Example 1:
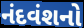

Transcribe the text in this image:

નંદવંશનો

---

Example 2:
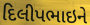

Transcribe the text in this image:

દિલીપભાઇને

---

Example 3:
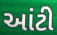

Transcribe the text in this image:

આંટી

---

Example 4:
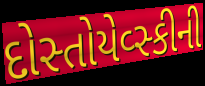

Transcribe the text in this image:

દોસ્તોયેવ્સ્કીની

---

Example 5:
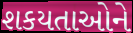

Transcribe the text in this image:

શકયતાઓને